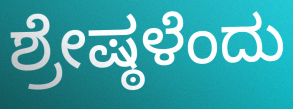
ಶ್ರೇಷ್ಠಳೆಂದು